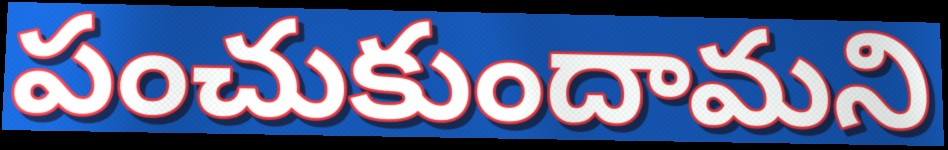
పంచుకుందామని